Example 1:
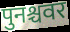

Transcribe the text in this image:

पुनश्चवर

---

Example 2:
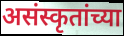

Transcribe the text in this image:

असंस्कृतांच्या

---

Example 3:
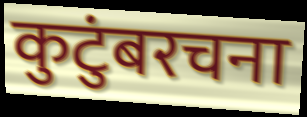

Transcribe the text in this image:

कुटुंबरचना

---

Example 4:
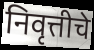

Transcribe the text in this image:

निवृत्तीचे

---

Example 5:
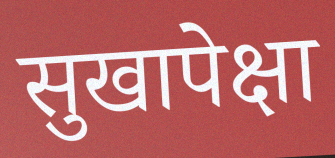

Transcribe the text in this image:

सुखापेक्षा